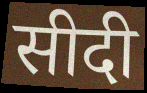
सीदी